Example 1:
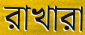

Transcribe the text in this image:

রাখারা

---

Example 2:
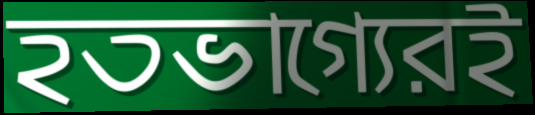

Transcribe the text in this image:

হতভাগ্যেরই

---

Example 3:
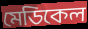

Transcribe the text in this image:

মেডিকেল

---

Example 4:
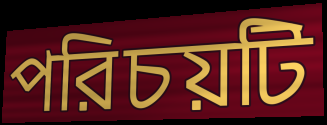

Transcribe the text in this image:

পরিচয়টি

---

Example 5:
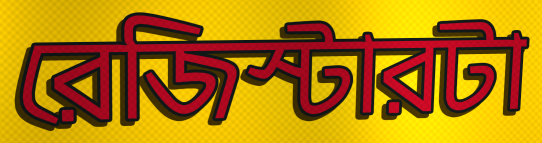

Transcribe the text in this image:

রেজিস্টারটা